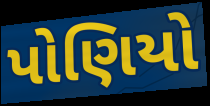
પોણિયો